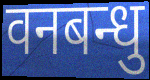
वनबन्धु